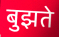
बुझते